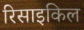
रिसाइकिल